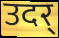
उदर्